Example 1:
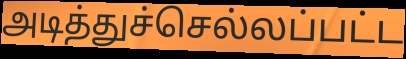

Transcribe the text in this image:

அடித்துச்செல்லப்பட்ட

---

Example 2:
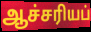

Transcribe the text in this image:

ஆச்சரியப்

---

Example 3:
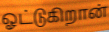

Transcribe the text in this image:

ஓட்டுகிறான்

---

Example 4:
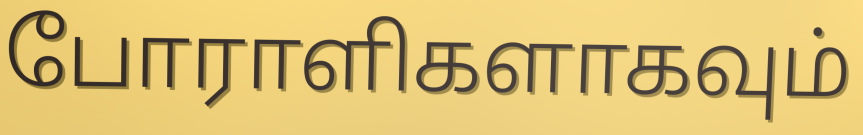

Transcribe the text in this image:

போராளிகளாகவும்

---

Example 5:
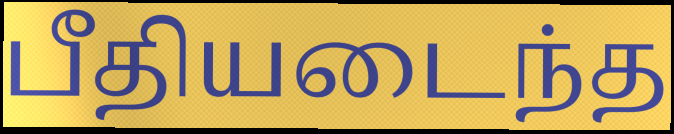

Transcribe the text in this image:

பீதியடைந்த